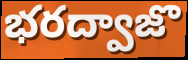
భరద్వాజొ